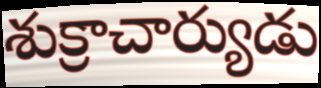
శుక్రాచార్యుడు